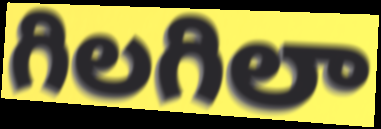
గిలగిలా